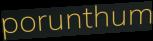
porunthum